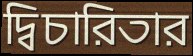
দ্বিচারিতার